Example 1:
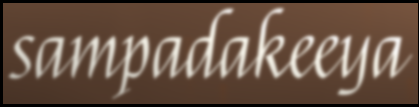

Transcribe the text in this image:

sampadakeeya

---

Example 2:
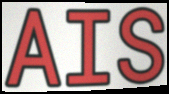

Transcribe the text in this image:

AIS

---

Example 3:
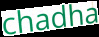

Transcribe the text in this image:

chadha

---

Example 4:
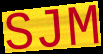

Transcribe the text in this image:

SJM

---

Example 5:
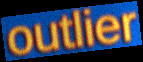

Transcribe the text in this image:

outlier